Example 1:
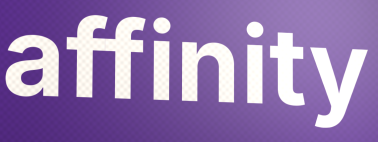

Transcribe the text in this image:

affinity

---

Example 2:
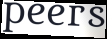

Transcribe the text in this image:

peers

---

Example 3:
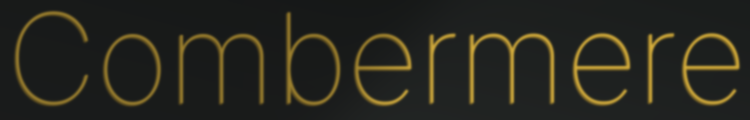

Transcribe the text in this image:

Combermere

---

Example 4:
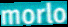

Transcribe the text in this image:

morlo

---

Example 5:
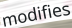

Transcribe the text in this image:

modifies